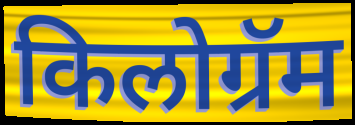
किलोग्रॅम